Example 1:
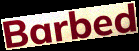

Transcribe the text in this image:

Barbed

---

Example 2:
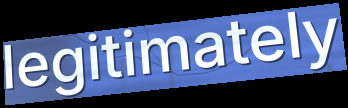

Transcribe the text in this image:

legitimately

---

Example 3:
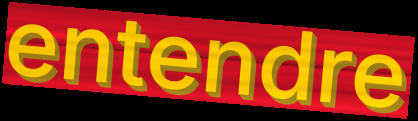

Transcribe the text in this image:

entendre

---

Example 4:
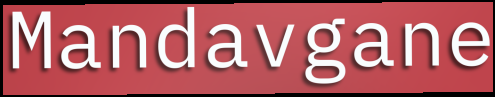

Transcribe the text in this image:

Mandavgane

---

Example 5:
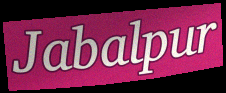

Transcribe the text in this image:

Jabalpur